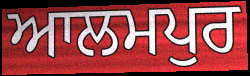
ਆਲਮਪੁਰ